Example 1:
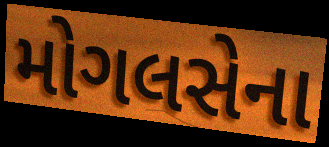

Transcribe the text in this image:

મોગલસેના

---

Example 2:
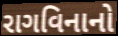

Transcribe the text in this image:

રાગવિનાનો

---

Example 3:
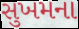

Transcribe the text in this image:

સુખમના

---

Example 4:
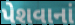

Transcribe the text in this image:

પેશવાનાં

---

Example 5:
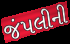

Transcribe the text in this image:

જંપલીની